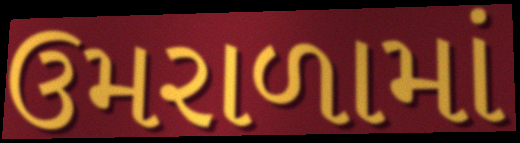
ઉમરાળામાં